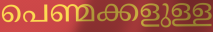
പെണ്മക്കളുള്ള